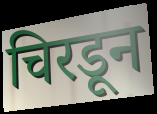
चिरडून